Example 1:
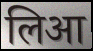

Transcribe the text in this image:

लिआ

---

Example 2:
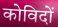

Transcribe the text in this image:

कोविदों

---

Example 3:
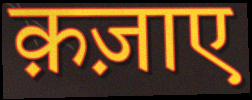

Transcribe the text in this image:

क़ज़ाए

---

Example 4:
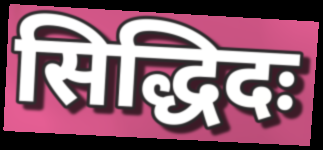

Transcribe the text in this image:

सिद्धिदः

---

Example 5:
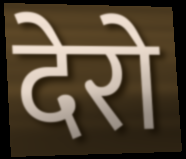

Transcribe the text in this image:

देरो